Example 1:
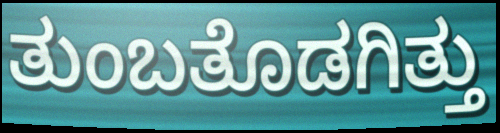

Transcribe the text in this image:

ತುಂಬತೊಡಗಿತ್ತು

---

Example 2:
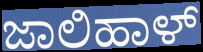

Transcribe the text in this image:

ಜಾಲಿಹಾಳ್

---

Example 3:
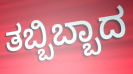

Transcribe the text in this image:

ತಬ್ಬಿಬ್ಬಾದ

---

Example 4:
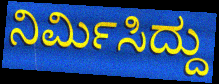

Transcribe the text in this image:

ನಿರ್ಮಿಸಿದ್ದು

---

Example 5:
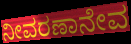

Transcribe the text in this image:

ನೀವರಣಾನೇವ